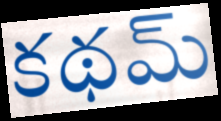
కథమ్